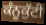
ਕੰਨੂਕੁੱਟੀ